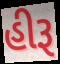
હીરૂ